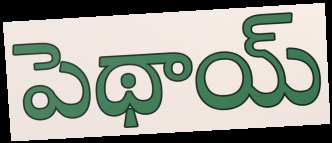
పెథాయ్